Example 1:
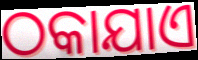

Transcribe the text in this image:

ଠକାଯାଏ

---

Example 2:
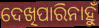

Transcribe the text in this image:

ଦେଖିପାରିନାହୁଁ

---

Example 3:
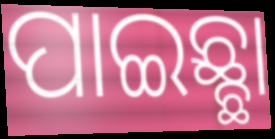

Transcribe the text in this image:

ପାଇଛ୍ଛା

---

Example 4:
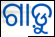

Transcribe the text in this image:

ଗାଡ଼ୁ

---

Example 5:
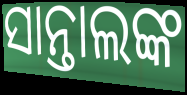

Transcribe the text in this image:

ସାନ୍ତାଲଙ୍କ